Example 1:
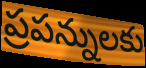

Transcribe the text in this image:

ప్రపన్నులకు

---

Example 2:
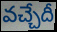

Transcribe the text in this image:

వచ్చేదీ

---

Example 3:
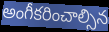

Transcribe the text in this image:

అంగీకరించాల్సిన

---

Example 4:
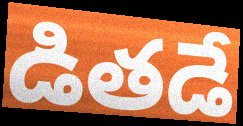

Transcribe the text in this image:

డితడే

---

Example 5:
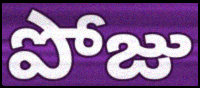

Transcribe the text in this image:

పోజు